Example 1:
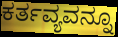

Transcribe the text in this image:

ಕರ್ತವ್ಯವನ್ನೂ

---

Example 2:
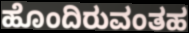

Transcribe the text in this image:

ಹೊಂದಿರುವಂತಹ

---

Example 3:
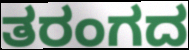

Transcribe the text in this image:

ತರಂಗದ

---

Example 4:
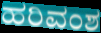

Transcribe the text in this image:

ಹರಿವಂಶ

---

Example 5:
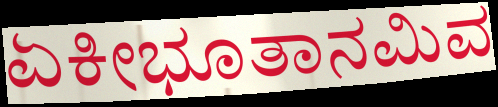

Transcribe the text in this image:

ಏಕೀಭೂತಾನಮಿವ